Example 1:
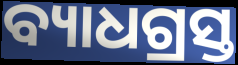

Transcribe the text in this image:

ବ୍ୟାଧଗ୍ରସ୍ତ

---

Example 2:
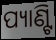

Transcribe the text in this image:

ପ୍ୟାଣ୍ଟି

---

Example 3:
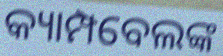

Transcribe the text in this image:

କ୍ୟାମ୍ପବେଲଙ୍କ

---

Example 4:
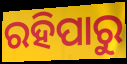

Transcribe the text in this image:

ରହିପାରୁ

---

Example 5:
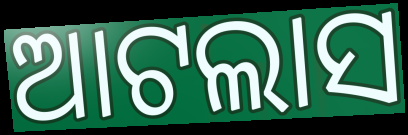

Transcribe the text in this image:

ଆଟଲାସ